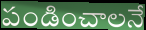
పండించాలనే